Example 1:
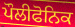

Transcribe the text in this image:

ਪੌਲੀਫੋਨਿਕ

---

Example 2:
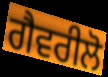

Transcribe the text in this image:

ਗੈਵਰੀਲੋ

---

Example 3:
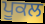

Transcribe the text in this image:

ਪੂਕਲ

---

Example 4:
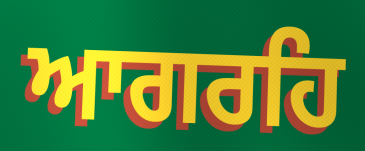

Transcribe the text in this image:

ਆਗਰਹਿ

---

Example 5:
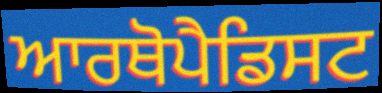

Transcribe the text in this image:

ਆਰਥੋਪੈਡਿਸਟ